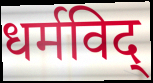
धर्मविद्